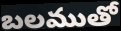
బలముతో